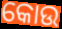
କୋଉ